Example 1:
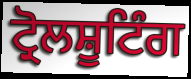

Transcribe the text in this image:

ਟ੍ਰੋਲਸ਼ੂਟਿੰਗ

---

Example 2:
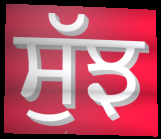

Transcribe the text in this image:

ਸੁੱਝ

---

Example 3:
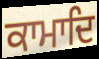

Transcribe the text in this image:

ਕਾਮਾਦਿ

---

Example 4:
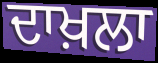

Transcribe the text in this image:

ਦਾਖ਼ਲਾ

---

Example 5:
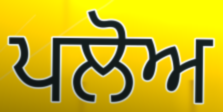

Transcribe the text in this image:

ਪਲੋਅ